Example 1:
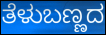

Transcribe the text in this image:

ತೆಳುಬಣ್ಣದ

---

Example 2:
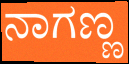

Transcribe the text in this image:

ನಾಗಣ್ಣ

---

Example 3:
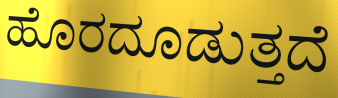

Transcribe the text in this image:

ಹೊರದೂಡುತ್ತದೆ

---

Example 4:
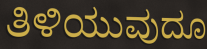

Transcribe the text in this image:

ತಿಳಿಯುವುದೂ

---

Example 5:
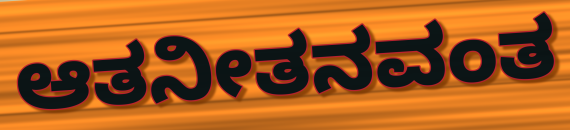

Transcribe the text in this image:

ಆತನೀತನವಂತ